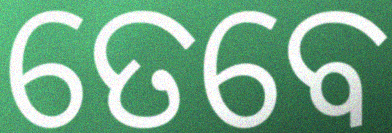
ତେବେ